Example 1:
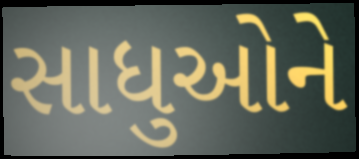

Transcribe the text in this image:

સાધુઓને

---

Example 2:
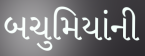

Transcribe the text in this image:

બચુમિયાંની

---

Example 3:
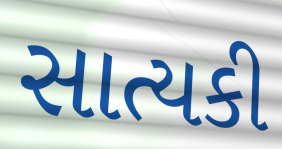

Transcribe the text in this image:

સાત્યકી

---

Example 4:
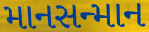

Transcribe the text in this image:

માનસન્માન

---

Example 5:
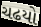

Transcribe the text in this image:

ચઢયો